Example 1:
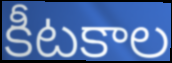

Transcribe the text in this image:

కీటకాల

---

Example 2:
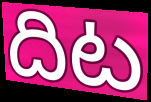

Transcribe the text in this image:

దిట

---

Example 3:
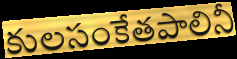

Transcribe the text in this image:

కులసంకేతపాలినీ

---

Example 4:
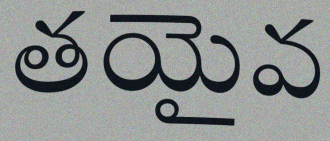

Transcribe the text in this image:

తయైవ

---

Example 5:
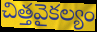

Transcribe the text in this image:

చిత్తవైకల్యం